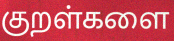
குறள்களை